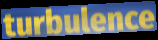
turbulence